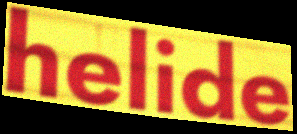
helide